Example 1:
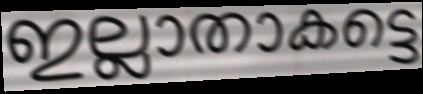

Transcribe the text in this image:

ഇല്ലാതാകട്ടെ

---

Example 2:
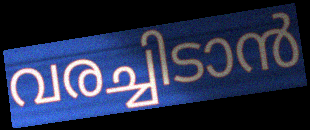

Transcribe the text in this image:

വരച്ചിടാൻ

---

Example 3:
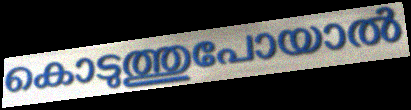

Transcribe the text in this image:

കൊടുത്തുപോയാൽ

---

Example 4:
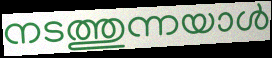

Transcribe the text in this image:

നടത്തുന്നയാൾ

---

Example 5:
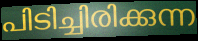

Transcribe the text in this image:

പിടിച്ചിരിക്കുന്ന